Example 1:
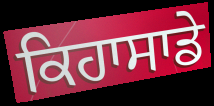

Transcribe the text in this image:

ਕਿਹਾਸਾਡੇ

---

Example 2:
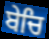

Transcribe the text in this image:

ਬੇਚਿ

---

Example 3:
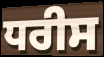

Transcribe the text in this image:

ਧਰੀਸ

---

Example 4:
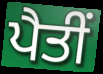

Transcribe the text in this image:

ਪੈਤੀਂ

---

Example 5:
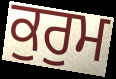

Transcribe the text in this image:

ਕੁਰੁਮ